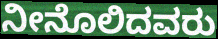
ನೀನೊಲಿದವರು